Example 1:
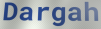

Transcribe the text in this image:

Dargah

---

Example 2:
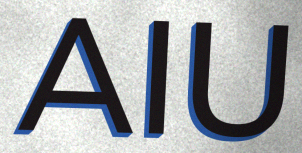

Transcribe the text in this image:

AIU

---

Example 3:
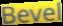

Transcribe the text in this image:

Bevel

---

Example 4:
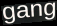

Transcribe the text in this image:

gang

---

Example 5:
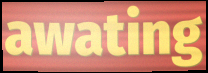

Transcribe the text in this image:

awating